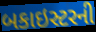
બકાઇસ્ટરની